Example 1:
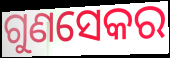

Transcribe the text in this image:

ଗୁଣସେକର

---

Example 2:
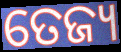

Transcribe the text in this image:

ତେଜ୍ୟ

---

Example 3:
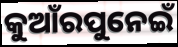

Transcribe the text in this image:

କୁଆଁରପୁନେଇଁ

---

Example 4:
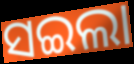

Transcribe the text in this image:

ସଇଲା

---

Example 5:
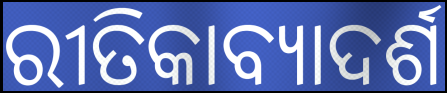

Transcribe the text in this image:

ରୀତିକାବ୍ୟାଦର୍ଶ